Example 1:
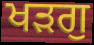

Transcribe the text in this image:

ਖੜਗੁ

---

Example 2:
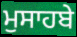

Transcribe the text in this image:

ਮੁਸਾਹਬੇ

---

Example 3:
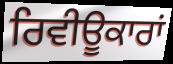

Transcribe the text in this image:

ਰਿਵੀਊਕਾਰਾਂ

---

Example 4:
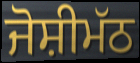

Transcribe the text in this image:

ਜੋਸ਼ੀਮੱਠ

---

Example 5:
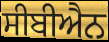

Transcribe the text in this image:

ਸੀਬੀਐਨ